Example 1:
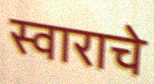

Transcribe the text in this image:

स्वाराचे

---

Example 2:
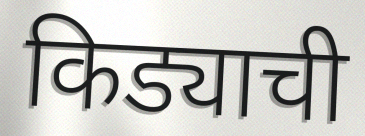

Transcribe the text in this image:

किड्याची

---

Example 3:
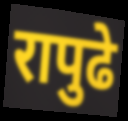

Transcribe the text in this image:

रापुढे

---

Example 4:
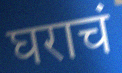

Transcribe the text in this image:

घराचं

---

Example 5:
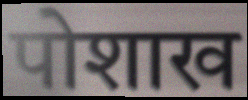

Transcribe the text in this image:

पोशाख